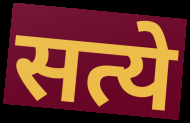
सत्ये